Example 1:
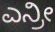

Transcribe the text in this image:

ಎನ್ರೀ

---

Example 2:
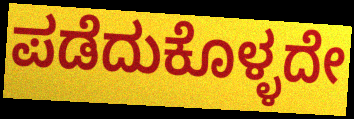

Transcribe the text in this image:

ಪಡೆದುಕೊಳ್ಳದೇ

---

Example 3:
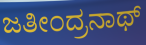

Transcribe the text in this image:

ಜತೀಂದ್ರನಾಥ್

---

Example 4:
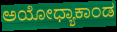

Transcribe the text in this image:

ಅಯೋಧ್ಯಾಕಾಂಡ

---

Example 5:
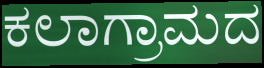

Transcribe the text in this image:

ಕಲಾಗ್ರಾಮದ